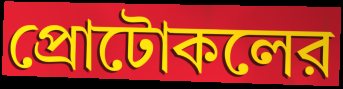
প্রোটোকলের